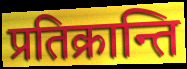
प्रतिक्रान्ति